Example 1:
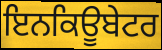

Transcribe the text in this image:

ਇਨਕਿਊਬੇਟਰ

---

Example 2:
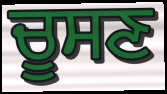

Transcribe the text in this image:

ਚੂਸਣ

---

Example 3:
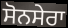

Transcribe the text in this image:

ਸੋਨਸੇਰਾ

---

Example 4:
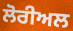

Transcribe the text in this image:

ਲੋਰੀਅਲ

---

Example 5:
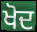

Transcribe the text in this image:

ਖੋਦ